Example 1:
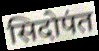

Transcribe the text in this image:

सिदोपंत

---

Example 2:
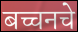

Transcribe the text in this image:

बच्चनचे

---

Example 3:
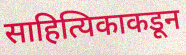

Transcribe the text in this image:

साहित्यिकाकडून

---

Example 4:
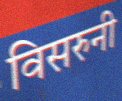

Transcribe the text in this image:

विसरुनी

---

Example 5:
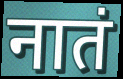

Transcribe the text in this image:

नातं